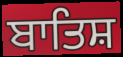
ਬਾਤਿਸ਼